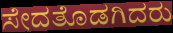
ಸೇದತೊಡಗಿದರು